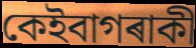
কেইবাগৰাকী